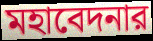
মহাবেদনার